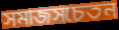
সমাজসচেতন